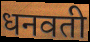
धनवती